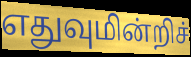
எதுவுமின்றிச்